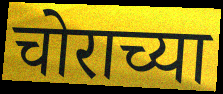
चोराच्या